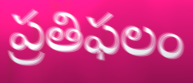
ప్రతిఫలం